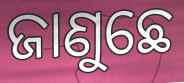
ଜାଣୁଛେ